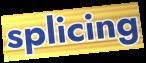
splicing